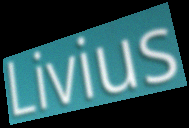
Livius